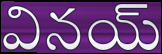
వినయ్